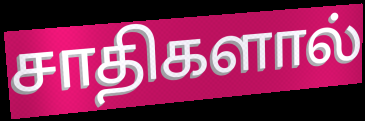
சாதிகளால்